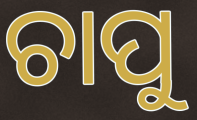
ଚାପୁ